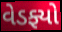
વેડફ્યો